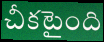
చీకటైంది